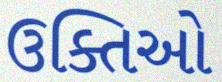
ઉક્તિઓ